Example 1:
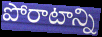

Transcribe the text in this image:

పోరాటాన్ని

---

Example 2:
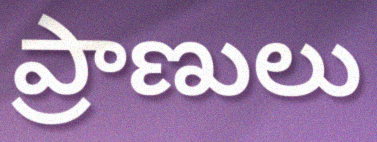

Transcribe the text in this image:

ప్రాణులు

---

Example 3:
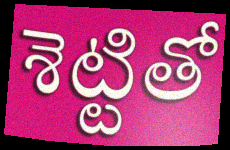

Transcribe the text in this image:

శెట్టితో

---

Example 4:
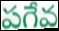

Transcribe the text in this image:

పగేవ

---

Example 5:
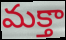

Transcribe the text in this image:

మక్తా